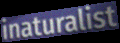
inaturalist